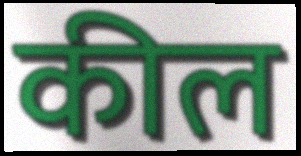
कील